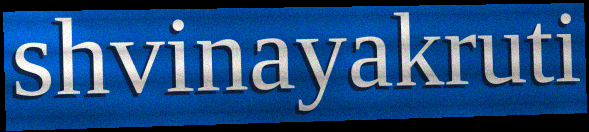
shvinayakruti